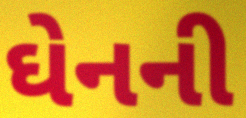
ઘેનની